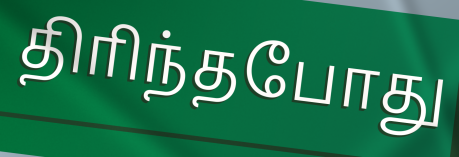
திரிந்தபோது